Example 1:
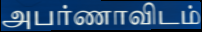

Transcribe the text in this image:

அபர்ணாவிடம்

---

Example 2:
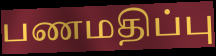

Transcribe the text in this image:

பணமதிப்பு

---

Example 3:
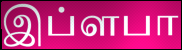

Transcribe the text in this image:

இப்ளபா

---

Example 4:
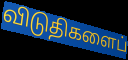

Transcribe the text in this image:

விடுதிகளைப்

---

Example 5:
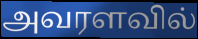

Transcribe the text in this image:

அவரளவில்